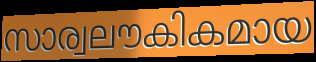
സാര്വലൗകികമായ